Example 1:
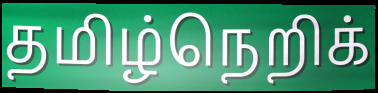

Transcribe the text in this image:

தமிழ்நெறிக்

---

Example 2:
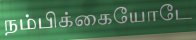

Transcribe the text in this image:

நம்பிக்கையோடே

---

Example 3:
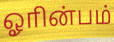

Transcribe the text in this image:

ஓரின்பம்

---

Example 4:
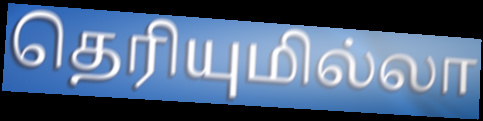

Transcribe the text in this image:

தெரியுமில்லா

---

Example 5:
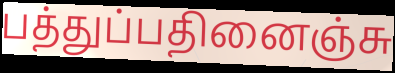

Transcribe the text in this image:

பத்துப்பதினைஞ்சு